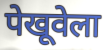
पेखूवेला